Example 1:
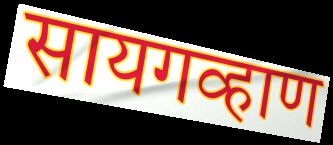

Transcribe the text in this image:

सायगव्हाण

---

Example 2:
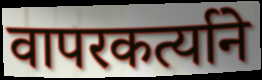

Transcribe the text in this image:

वापरकर्त्याने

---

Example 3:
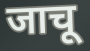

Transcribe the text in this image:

जाचू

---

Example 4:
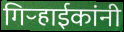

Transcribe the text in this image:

गिऱ्हाईकांनी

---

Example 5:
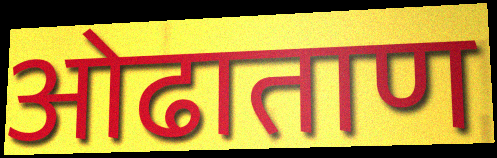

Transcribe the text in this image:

ओढाताण